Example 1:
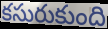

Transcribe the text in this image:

కసురుకుంది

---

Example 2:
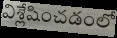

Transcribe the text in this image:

విశ్లేషించడంలో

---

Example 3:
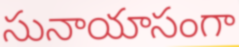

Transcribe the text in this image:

సునాయాసంగా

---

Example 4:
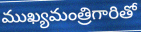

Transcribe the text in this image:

ముఖ్యమంత్రిగారితో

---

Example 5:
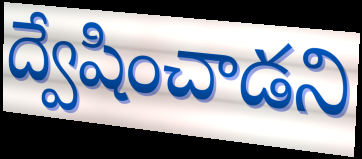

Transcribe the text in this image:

ద్వేషించాడని